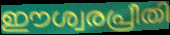
ഈശ്വരപ്രീതി